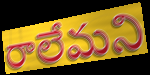
రాలేమని